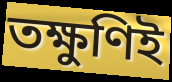
তক্ষুণিই